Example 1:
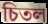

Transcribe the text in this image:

চিতল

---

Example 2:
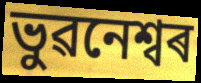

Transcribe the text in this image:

ভুৱনেশ্বৰ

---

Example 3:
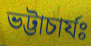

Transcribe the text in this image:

ভট্টাচাৰ্যঃ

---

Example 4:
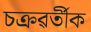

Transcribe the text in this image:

চক্ৰৱৰ্তীক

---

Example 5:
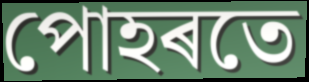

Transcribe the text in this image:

পোহৰতে